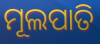
ମୂଲପାତି